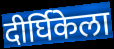
दीर्घिकेला